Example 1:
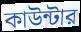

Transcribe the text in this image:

কাউন্টার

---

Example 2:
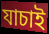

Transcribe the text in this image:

যাচাই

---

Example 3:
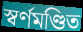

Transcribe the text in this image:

স্বর্ণমণ্ডিত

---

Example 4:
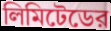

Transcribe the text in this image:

লিমিটেডের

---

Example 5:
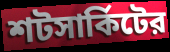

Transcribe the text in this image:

শটসার্কিটের